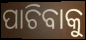
ପାଚିବାକୁ